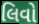
લિવો